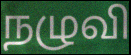
நழுவி